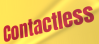
Contactless